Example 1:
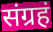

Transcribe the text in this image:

संग्रहं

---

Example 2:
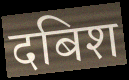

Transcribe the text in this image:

दबिश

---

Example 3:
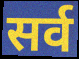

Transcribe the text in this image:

सर्व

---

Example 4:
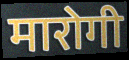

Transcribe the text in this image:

मारोगी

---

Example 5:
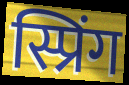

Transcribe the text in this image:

स्प्रिंग